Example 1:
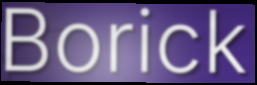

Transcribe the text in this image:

Borick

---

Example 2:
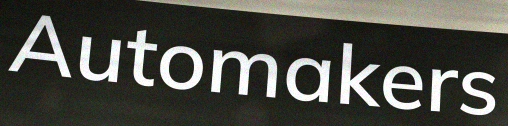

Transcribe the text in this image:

Automakers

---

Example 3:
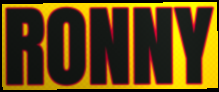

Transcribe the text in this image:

RONNY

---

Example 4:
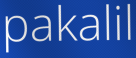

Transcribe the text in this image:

pakalil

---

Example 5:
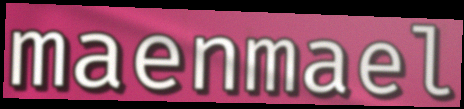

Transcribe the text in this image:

maenmael